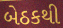
બેઠકથી